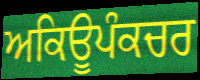
ਅਕਿਊਪੰਕਚਰ